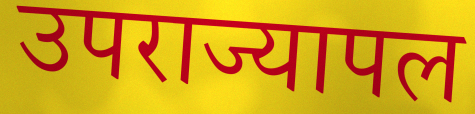
उपराज्यापल